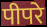
पीपरे